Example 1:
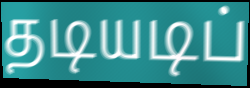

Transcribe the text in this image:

தடியடிப்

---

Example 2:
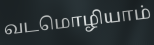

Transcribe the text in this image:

வடமொழியாம்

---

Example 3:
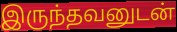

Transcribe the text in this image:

இருந்தவனுடன்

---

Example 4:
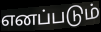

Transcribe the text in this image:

எனப்படும்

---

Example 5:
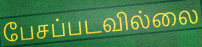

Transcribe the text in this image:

பேசப்படவில்லை